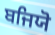
ਬਜਿਯੋ